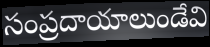
సంప్రదాయాలుండేవి